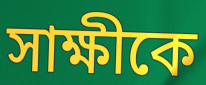
সাক্ষীকে